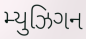
મ્યુઝિગન